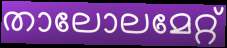
താലോലമേറ്റ്